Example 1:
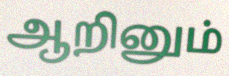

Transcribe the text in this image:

ஆறினும்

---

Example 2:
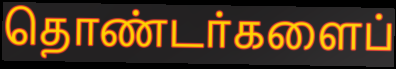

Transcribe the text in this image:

தொண்டர்களைப்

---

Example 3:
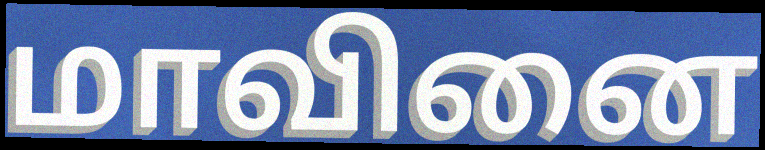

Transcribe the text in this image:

மாவினை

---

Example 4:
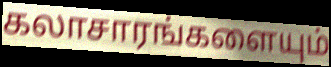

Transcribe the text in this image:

கலாசாரங்களையும்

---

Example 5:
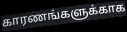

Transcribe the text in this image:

காரணங்களுக்காக